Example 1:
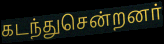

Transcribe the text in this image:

கடந்துசென்றனர்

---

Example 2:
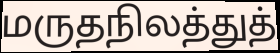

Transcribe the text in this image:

மருதநிலத்துத்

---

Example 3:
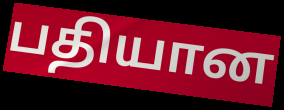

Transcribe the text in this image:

பதியான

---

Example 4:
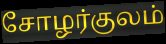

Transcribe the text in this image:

சோழர்குலம்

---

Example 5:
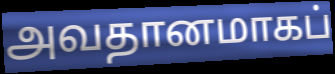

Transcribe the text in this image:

அவதானமாகப்